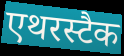
एथरस्टैक